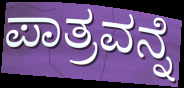
ಪಾತ್ರವನ್ನೆ